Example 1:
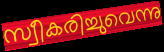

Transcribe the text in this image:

സ്വീകരിച്ചുവെന്നു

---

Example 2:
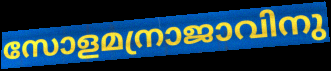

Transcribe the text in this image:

സോളമന്രാജാവിനു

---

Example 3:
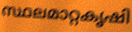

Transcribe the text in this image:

സ്ഥലമാറ്റകൃഷി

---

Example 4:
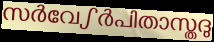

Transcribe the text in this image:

സർവേഽർപിതാസ്തദു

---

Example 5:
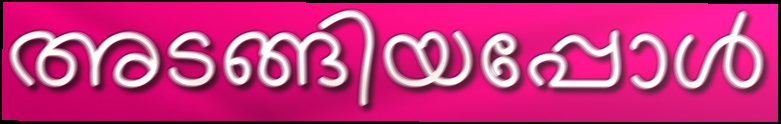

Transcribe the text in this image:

അടങ്ങിയപ്പോൾ